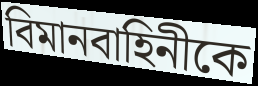
বিমানবাহিনীকে